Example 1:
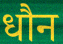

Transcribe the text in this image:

धौन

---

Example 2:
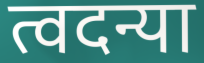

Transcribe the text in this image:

त्वदन्या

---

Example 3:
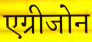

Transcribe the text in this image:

एग्रीजोन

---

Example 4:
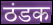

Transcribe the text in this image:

ठंडक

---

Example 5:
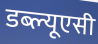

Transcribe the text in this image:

डब्ल्यूएसी